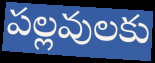
పల్లవులకు